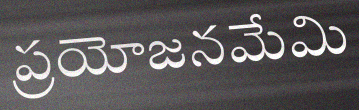
ప్రయోజనమేమి